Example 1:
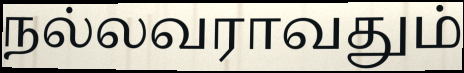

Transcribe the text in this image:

நல்லவராவதும்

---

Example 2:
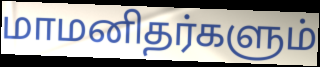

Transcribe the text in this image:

மாமனிதர்களும்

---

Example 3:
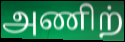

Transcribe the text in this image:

அணிற்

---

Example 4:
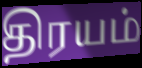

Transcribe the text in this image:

திரயம்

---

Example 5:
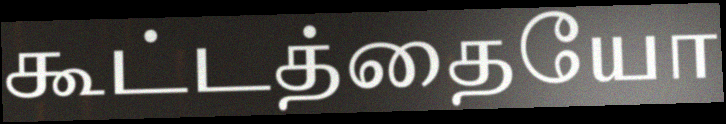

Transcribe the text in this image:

கூட்டத்தையோ